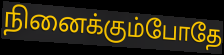
நினைக்கும்போதே